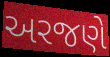
અરજણે